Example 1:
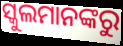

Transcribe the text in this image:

ସ୍କୁଲମାନଙ୍କରୁ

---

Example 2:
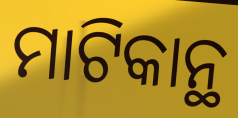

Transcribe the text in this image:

ମାଟିକାନ୍ଥ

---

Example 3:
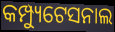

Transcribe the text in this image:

କମ୍ପ୍ୟୁଟେସନାଲ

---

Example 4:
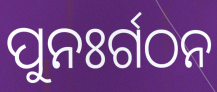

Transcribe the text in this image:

ପୁନଃର୍ଗଠନ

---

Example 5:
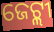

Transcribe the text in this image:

ଜେଟ୍ଲୀ